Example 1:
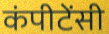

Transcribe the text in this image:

कंपीटेंसी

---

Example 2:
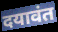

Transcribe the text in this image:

दयावंत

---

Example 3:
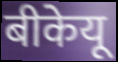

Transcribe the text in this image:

बीकेयू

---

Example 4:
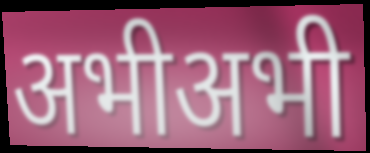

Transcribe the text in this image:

अभीअभी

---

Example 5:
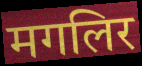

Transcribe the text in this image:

मगलिर